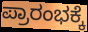
ಪ್ರಾರಂಭಕ್ಕೆ